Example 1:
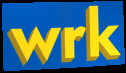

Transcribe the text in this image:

wrk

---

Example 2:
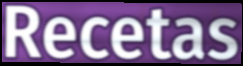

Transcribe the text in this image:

Recetas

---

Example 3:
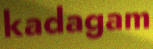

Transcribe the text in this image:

kadagam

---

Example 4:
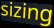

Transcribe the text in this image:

sizing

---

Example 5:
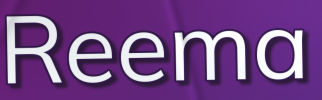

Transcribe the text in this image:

Reema